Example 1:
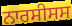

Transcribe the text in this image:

ਨਾਰਸੀਸਸ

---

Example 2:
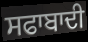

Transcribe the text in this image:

ਸਫਾਬਾਦੀ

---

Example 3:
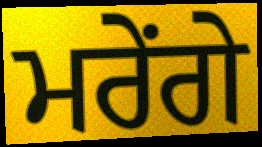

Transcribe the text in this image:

ਮਰੇਂਗੇ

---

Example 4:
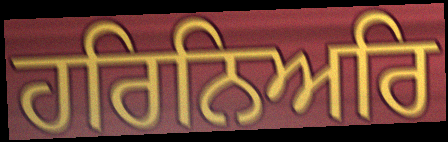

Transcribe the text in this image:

ਹਰਿਨਿਅਰਿ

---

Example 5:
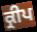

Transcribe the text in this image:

ਕ੍ਰੀਪ